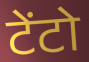
टेंटो